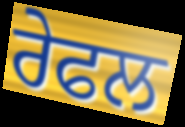
ਰੇਫਲ